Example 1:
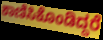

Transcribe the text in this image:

ಕಾಣಿಸಿಕೊಂಡಿದ್ದರೆ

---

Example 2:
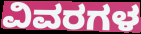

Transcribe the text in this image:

ವಿವರಗಳ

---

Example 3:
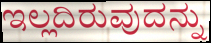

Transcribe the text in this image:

ಇಲ್ಲದಿರುವುದನ್ನು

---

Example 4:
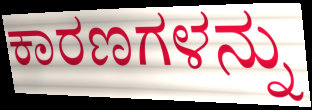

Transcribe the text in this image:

ಕಾರಣಗಳನ್ನು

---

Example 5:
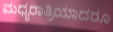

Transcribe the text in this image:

ಮಧ್ಯರಾತ್ರಿಯಾದರೂ